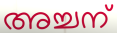
അച്ചന്